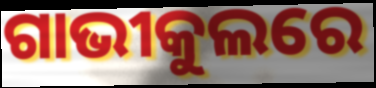
ଗାଭୀକୁଲରେ